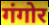
गंगोर